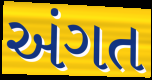
અંગત